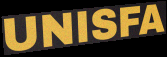
UNISFA